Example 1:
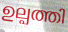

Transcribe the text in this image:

ഉല്പത്തി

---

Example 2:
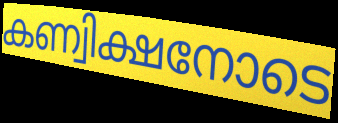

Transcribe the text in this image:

കണ്വിക്ഷനോടെ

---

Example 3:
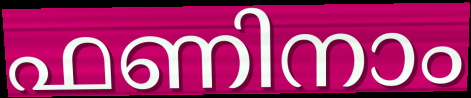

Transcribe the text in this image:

ഫണിനാം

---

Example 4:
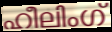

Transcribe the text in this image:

ഹീലിംഗ്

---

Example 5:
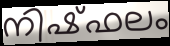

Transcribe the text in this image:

നിഷ്ഫലം